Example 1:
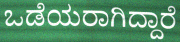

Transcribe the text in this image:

ಒಡೆಯರಾಗಿದ್ದಾರೆ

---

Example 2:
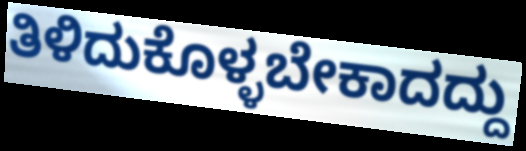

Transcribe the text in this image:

ತಿಳಿದುಕೊಳ್ಳಬೇಕಾದದ್ದು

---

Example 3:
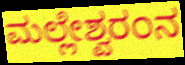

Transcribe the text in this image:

ಮಲ್ಲೇಶ್ವರಂನ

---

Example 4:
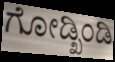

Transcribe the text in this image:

ಗೋಡ್ಖಿಂಡಿ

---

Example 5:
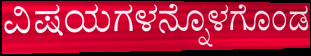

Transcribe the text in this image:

ವಿಷಯಗಳನ್ನೊಳಗೊಂಡ